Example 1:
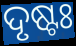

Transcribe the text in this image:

ଦୃଷ୍ଟଃ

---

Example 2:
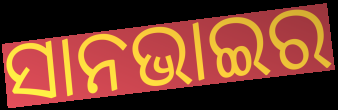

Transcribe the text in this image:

ସାନଭାଇର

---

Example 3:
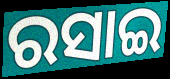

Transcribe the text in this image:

ରସାଇ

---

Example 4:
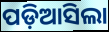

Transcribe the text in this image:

ପଡ଼ିଆସିଲା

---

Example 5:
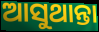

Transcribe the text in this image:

ଆସୁଥାନ୍ତା